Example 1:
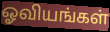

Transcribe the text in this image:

ஓவியங்கள்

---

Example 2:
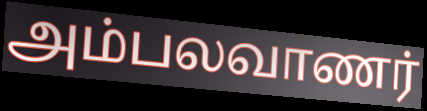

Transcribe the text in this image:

அம்பலவாணர்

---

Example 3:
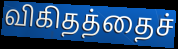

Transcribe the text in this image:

விகிதத்தைச்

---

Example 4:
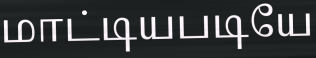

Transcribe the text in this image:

மாட்டியபடியே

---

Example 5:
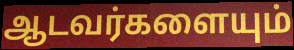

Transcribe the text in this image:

ஆடவர்களையும்